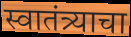
स्वातंत्र्याचा